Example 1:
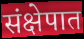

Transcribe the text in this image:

संक्षेपात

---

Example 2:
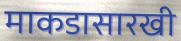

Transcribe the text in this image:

माकडासारखी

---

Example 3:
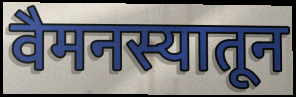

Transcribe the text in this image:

वैमनस्यातून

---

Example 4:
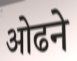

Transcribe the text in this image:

ओढने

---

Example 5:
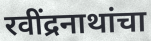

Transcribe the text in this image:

रवींद्रनाथांचा